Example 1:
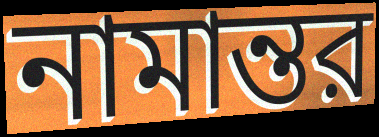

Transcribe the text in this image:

নামান্তর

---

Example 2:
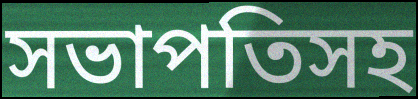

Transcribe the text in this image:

সভাপতিসহ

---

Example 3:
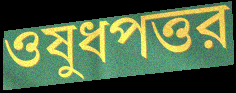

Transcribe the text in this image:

ওষুধপত্তর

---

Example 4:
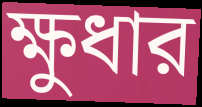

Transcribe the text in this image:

ক্ষুধার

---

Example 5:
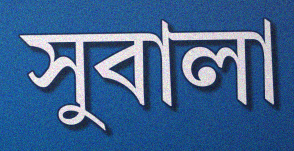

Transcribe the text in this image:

সুবালা